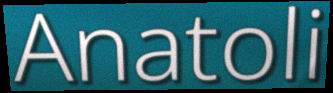
Anatoli